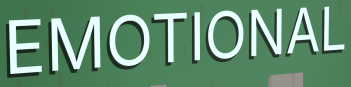
EMOTIONAL